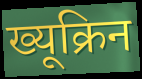
ख्यूक्रिन